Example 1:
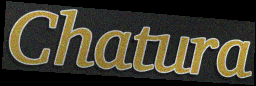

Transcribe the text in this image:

Chatura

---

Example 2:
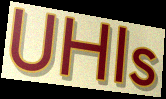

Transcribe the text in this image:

UHIs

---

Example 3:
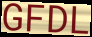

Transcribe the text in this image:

GFDL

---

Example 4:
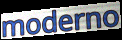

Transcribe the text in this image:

moderno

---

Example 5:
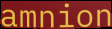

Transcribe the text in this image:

amnion